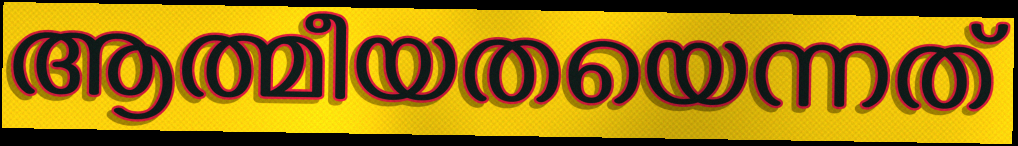
ആത്മീയതയെന്നത്